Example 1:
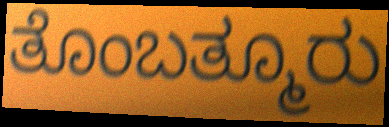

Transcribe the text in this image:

ತೊಂಬತ್ಮೂರು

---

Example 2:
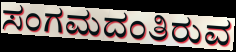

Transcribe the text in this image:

ಸಂಗಮದಂತಿರುವ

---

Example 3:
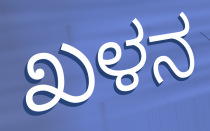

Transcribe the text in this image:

ಖಳನ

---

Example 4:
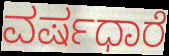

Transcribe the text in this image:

ವರ್ಷಧಾರೆ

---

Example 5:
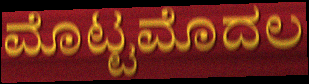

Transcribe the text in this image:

ಮೊಟ್ಟಮೊದಲ